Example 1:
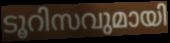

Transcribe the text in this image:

ടൂറിസവുമായി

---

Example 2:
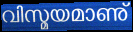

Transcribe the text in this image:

വിസ്മയമാണു്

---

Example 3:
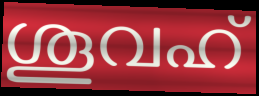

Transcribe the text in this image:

ശൂവഹ്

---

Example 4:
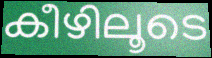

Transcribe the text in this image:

കീഴിലൂടെ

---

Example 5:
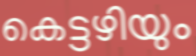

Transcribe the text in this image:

കെട്ടഴിയും